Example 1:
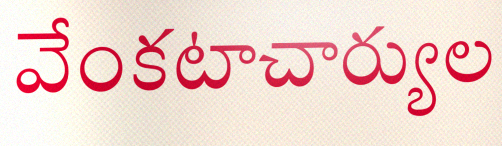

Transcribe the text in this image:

వేంకటాచార్యుల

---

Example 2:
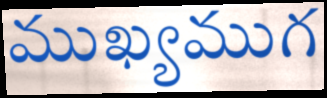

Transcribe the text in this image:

ముఖ్యముగ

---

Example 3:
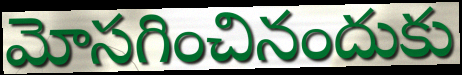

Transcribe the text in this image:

మోసగించినందుకు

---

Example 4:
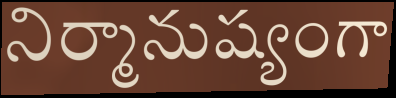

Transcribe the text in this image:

నిర్మానుష్యంగా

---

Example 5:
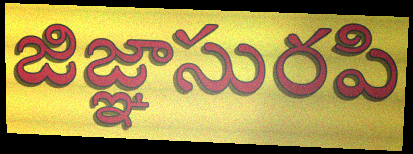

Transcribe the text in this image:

జిజ్ఞాసురపి